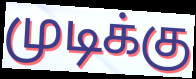
முடிக்கு